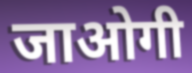
जाओगी